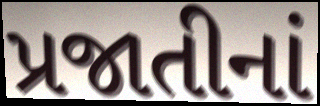
પ્રજાતીનાં